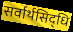
सर्वार्थसिद्धि